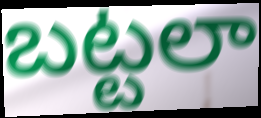
బట్టలా